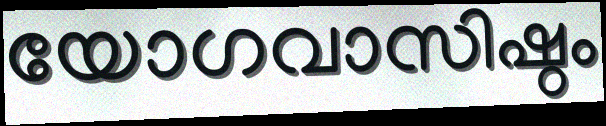
യോഗവാസിഷ്ഠം